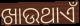
ଖାଉଥାଏଁ